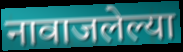
नावाजलेल्या